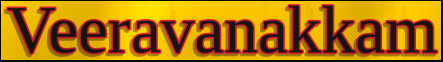
Veeravanakkam